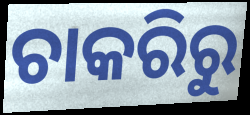
ଚାକରିରୁ